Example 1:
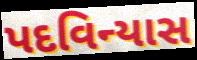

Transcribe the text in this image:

પદવિન્યાસ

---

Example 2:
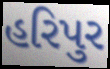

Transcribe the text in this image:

હરિપુર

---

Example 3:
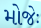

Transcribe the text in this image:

મોજેઃ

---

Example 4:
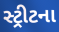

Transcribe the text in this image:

સ્ટ્રીટના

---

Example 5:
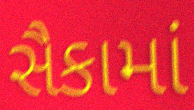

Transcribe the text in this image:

સૈકામાં